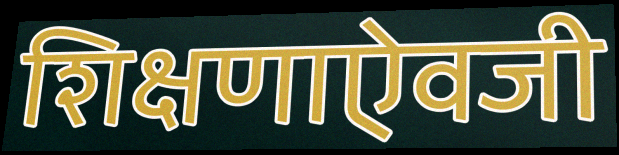
शिक्षणाऐवजी